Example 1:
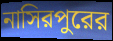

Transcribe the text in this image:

নাসিরপুরের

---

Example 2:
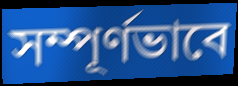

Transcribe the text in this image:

সম্পূর্ণভাবে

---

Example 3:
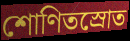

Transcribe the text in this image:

শোণিতস্রোত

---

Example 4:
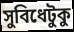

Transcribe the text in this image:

সুবিধেটুকু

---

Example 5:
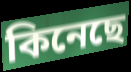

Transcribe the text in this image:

কিনেছে